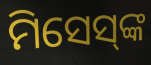
ମିସେସ୍‍ଙ୍କ